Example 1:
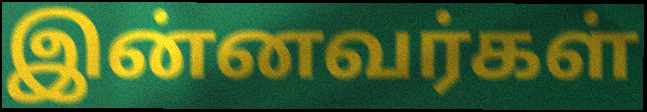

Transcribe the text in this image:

இன்னவர்கள்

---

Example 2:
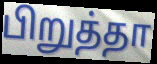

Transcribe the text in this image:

பிறுத்தா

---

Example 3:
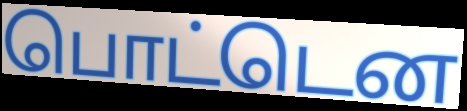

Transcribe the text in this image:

பொட்டென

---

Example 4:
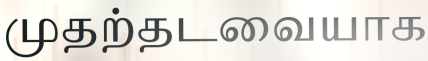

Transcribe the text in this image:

முதற்தடவையாக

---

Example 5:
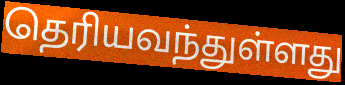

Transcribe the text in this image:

தெரியவந்துள்ளது